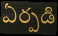
ఏర్పడి